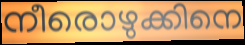
നീരൊഴുക്കിനെ